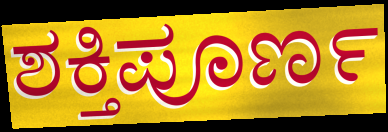
ಶಕ್ತಿಪೂರ್ಣ